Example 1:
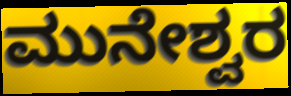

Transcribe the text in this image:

ಮುನೇಶ್ವರ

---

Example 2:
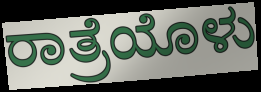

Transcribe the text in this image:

ರಾತ್ರೆಯೊಳು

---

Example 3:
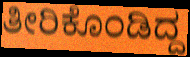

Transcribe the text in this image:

ತೀರಿಕೊಂಡಿದ್ದ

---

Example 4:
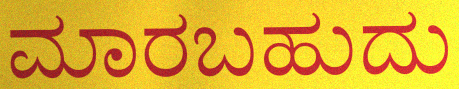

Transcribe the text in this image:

ಮಾರಬಹುದು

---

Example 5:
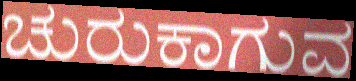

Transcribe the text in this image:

ಚುರುಕಾಗುವ